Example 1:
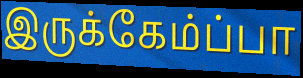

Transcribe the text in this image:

இருக்கேம்ப்பா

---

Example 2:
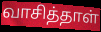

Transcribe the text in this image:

வாசித்தாள்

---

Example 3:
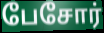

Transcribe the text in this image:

பேசோர்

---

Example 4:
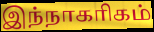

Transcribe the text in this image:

இந்நாகரிகம்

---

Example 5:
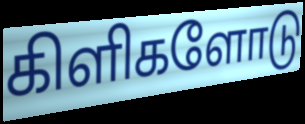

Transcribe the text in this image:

கிளிகளோடு